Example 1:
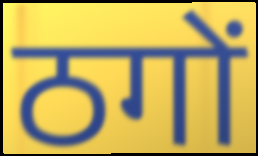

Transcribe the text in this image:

ठगों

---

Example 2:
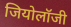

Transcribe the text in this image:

जियोलॉजी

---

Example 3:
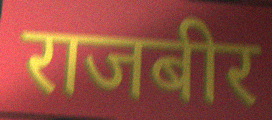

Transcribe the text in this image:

राजबीर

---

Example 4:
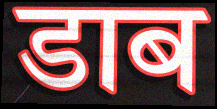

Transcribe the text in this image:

डाब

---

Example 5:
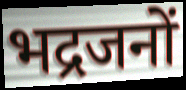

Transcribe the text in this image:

भद्रजनों